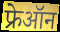
फ्रेऑन